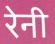
रेनी